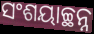
ସଂଶୟାଚ୍ଛନ୍ନ